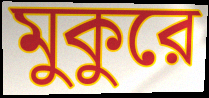
মুকুরে